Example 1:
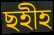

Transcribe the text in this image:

ছহীহ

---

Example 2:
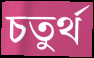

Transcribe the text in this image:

চতুৰ্থ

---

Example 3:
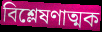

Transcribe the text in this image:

বিশ্লেষণাত্মক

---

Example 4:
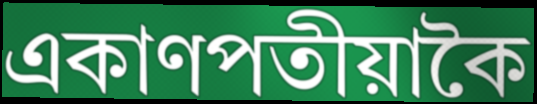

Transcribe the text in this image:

একাণপতীয়াকৈ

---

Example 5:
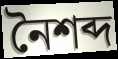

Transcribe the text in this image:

নৈশব্দ